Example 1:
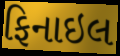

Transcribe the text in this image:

ફિનાઇલ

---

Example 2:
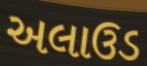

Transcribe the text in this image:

અલાઉડ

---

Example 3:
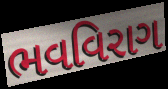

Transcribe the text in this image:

ભવવિરાગ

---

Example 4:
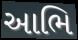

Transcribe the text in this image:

આભિ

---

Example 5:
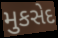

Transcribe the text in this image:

મુકસેદ